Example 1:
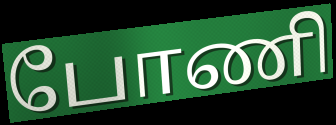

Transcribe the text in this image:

போணி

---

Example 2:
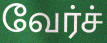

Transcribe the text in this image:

வேர்ச்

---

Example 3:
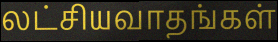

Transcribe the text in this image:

லட்சியவாதங்கள்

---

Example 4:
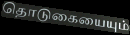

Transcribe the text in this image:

தொடுகையையும்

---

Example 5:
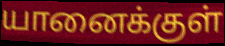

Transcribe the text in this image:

யானைக்குள்